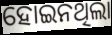
ହୋଇନଥିଲା